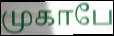
முகாபே